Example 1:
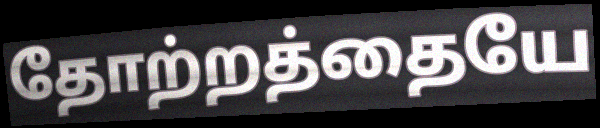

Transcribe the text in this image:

தோற்றத்தையே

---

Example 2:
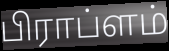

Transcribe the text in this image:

பிராப்ளம்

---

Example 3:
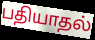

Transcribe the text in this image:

பதியாதல்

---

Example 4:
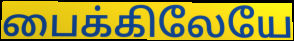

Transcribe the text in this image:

பைக்கிலேயே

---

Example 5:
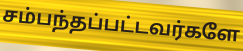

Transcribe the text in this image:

சம்பந்தப்பட்டவர்களே